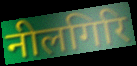
नीलगिरि